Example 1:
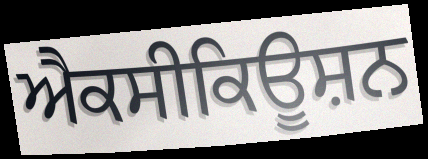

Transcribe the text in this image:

ਐਕਸੀਕਿਊਸ਼ਨ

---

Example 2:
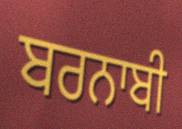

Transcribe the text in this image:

ਬਰਨਾਬੀ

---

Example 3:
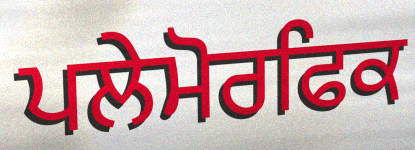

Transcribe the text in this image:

ਪਲੇਮੋਰਫਿਕ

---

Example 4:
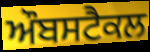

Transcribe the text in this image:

ਔਬਸਟੈਕਲ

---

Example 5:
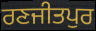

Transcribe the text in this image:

ਰਣਜੀਤਪੁਰ